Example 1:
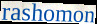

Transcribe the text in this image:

rashomon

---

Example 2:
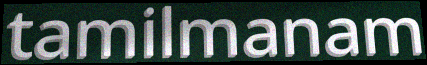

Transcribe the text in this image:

tamilmanam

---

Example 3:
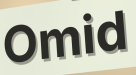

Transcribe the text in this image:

Omid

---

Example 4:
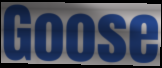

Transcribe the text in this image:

Goose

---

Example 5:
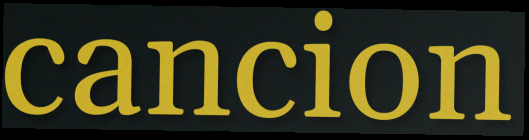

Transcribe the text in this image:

cancion